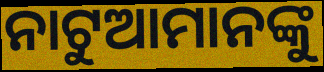
ନାଟୁଆମାନଙ୍କୁ